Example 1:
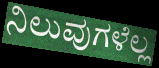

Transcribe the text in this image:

ನಿಲುವುಗಳೆಲ್ಲ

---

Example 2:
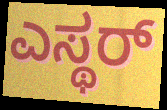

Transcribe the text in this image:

ಎಸ್ಥರ್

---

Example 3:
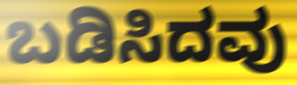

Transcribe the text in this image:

ಬಡಿಸಿದವು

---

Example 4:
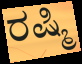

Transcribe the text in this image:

ರಷ್ಮಿ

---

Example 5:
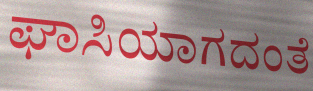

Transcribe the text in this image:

ಘಾಸಿಯಾಗದಂತೆ